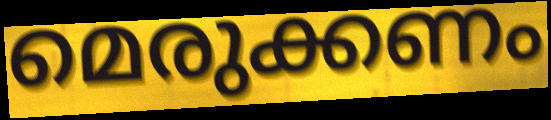
മെരുക്കണം